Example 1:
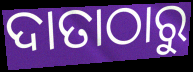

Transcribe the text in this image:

ଦାତାଠାରୁ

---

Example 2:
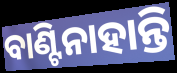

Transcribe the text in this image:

ବାଣ୍ଟିନାହାନ୍ତି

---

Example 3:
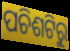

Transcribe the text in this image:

ପଚିଶଟିରୁ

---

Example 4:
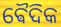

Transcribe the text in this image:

ଵୈଦିକ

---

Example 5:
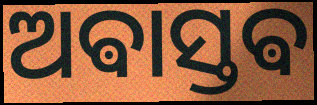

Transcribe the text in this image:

ଅଵାସ୍ତଵ